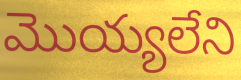
మొయ్యలేని